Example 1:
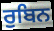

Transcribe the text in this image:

ਰੁਬਿਨ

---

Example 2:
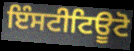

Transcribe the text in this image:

ਇੰਸਟੀਟਿਊਟੋ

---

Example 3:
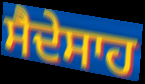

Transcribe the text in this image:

ਸੈਦੇਸਾਹ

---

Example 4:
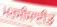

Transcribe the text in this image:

ਮਰਸੀਸਾਈਡ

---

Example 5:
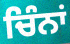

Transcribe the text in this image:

ਚਿੰਨਾਂ